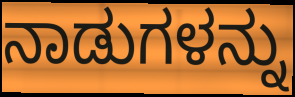
ನಾಡುಗಳನ್ನು